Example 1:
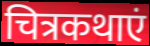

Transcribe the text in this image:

चित्रकथाएं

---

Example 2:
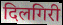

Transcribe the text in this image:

दिलगिरी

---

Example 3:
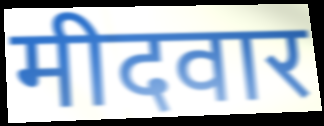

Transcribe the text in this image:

मीदवार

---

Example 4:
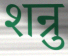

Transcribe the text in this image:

शन्रु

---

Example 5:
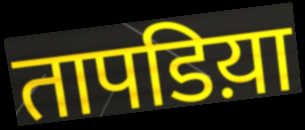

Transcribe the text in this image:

तापडिय़ा